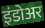
इंडोअर